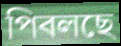
পিবলছে